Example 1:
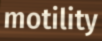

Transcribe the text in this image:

motility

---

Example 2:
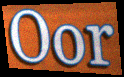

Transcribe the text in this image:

Oor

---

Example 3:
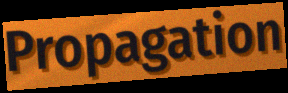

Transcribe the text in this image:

Propagation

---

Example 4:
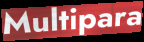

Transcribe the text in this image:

Multipara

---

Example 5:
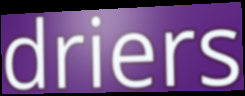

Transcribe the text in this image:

driers